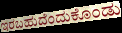
ಇರಬಹುದೆಂದುಕೊಂಡು